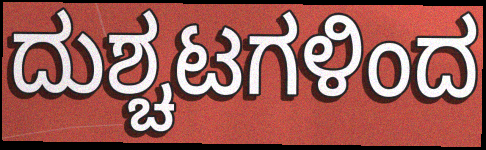
ದುಶ್ಚಟಗಳಿಂದ